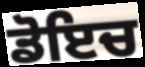
ਡੋਇਚ